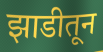
झाडीतून